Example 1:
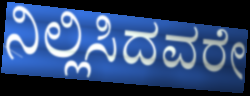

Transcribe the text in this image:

ನಿಲ್ಲಿಸಿದವರೇ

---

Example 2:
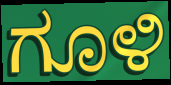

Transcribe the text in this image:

ಗೂಳಿ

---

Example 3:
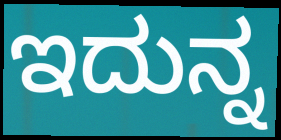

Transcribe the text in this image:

ಇದುನ್ನ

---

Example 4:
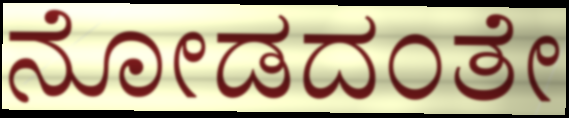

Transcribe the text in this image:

ನೋಡದಂತೇ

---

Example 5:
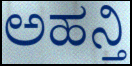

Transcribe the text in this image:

ಅಹನ್ತಿ